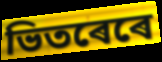
ভিতৰেৰে